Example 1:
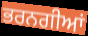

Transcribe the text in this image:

ਭਰਨਗੀਆਂ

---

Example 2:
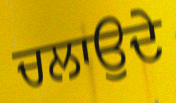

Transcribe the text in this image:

ਚਲਾਉਦੇ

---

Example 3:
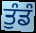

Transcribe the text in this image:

ਤੁੰਡੰ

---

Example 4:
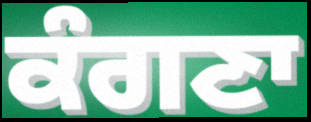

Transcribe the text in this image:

ਕੰਗਣਾ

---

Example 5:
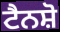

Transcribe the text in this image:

ਟੈਨਸ਼ੋ